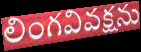
లింగవివక్షను